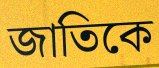
জাতিকে